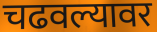
चढवल्यावर